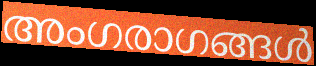
അംഗരാഗങ്ങൾ